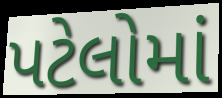
પટેલોમાં